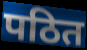
पठित